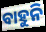
ବାହୁନି